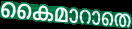
കൈമാറാതെ